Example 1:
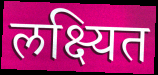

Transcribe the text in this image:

लक्ष्यित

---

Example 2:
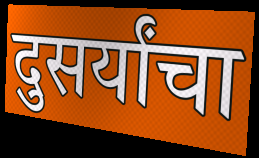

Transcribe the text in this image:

दुसर्यांचा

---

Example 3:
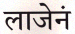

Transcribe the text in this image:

लाजेनं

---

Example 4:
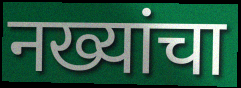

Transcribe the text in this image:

नख्यांचा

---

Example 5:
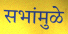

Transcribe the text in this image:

सभांमुळे